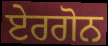
ਏਰਗੋਨ